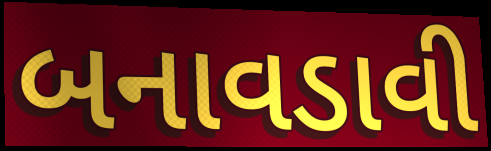
બનાવડાવી